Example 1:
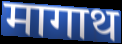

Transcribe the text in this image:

मागाथ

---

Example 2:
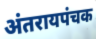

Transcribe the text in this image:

अंतरायपंचक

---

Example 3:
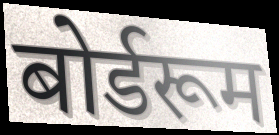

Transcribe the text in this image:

बोर्डरूम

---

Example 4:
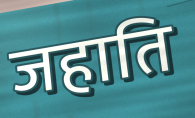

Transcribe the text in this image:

जहाति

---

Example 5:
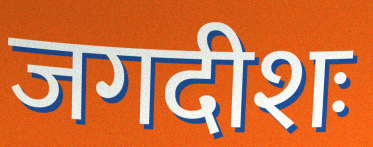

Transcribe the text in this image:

जगदीशः